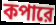
কপারে